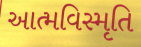
આત્મવિસ્મૃતિ